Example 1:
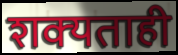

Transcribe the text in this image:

शक्‍यताही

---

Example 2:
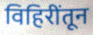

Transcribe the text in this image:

विहिरींतून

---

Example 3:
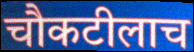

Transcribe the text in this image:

चौकटीलाच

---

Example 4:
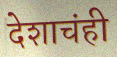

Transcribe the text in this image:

देशाचंही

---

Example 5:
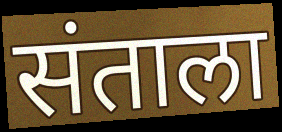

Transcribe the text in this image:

संताला